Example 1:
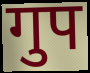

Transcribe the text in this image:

गुप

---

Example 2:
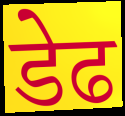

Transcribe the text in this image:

डेढ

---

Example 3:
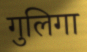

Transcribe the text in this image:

गुलिगा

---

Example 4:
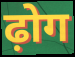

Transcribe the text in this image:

ढ़ोग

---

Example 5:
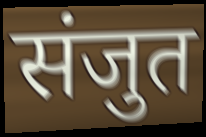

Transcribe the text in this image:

संजुत